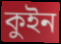
কুইন